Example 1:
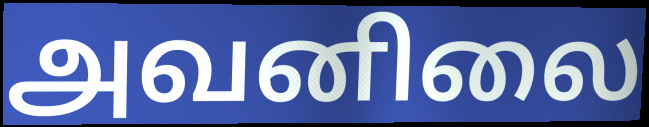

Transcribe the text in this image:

அவனிலை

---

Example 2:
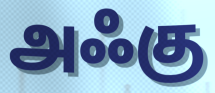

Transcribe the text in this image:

அஃகு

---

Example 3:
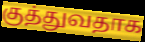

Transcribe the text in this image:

குத்துவதாக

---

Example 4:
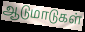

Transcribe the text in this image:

ஆடுமாடுகள்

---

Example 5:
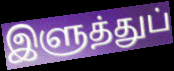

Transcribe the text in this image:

இளுத்துப்